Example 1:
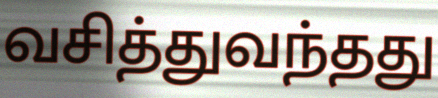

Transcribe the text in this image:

வசித்துவந்தது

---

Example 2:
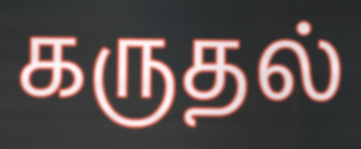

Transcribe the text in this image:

கருதல்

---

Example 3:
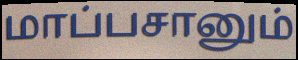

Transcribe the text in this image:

மாப்பசானும்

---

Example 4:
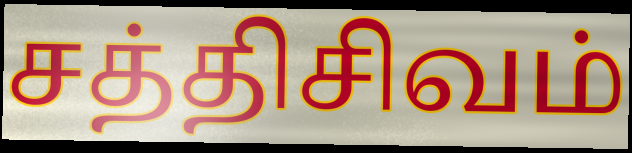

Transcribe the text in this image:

சத்திசிவம்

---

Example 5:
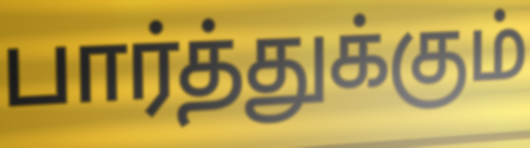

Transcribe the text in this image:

பார்த்துக்கும்